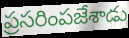
ప్రసరింపజేశాడు